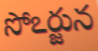
సోఽర్జున